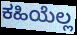
ಕಹಿಯೆಲ್ಲ